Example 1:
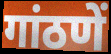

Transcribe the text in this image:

गांठणें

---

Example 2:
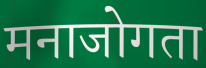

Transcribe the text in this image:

मनाजोगता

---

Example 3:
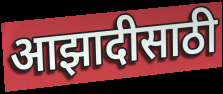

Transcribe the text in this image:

आझादीसाठी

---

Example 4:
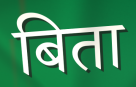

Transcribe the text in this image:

बिता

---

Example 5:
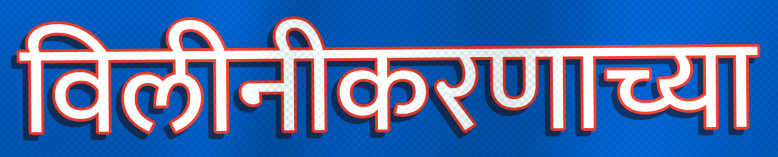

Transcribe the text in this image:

विलीनीकरणाच्या